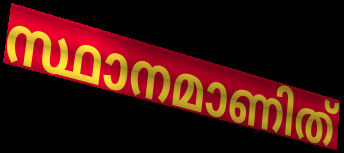
സ്ഥാനമാണിത്